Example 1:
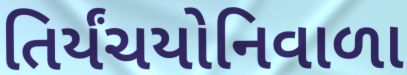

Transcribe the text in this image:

તિર્યંચયોનિવાળા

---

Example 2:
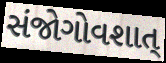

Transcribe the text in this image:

સંજોગોવશાત્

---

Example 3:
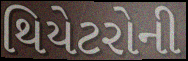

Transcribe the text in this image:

થિયેટરોની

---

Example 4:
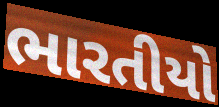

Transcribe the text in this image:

ભારતીયો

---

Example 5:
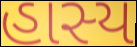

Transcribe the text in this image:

હાસ્ય